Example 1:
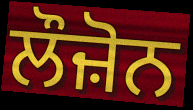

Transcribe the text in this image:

ਲੌਜ਼ੋਨ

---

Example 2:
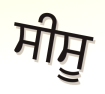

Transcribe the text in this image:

ਸੀਸੂ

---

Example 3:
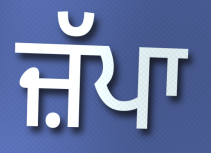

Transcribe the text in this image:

ਜ਼ੱਪਾ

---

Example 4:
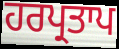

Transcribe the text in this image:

ਹਰਪ੍ਰਤਾਪ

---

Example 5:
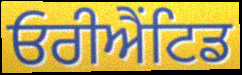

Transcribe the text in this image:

ਓਰੀਐਂਟਿਡ